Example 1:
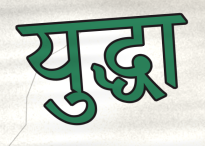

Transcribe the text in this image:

युद्धा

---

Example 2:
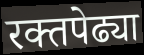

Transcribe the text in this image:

रक्तपेढ्या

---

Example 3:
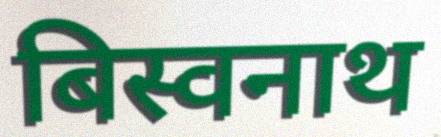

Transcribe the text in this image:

बिस्वनाथ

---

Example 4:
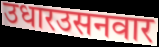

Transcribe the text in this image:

उधारउसनवार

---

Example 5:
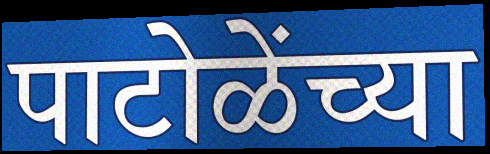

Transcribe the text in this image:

पाटोळेंच्या